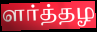
ளர்த்தழ